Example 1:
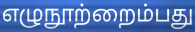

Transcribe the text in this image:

எழுநூற்றைம்பது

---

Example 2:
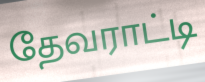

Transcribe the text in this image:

தேவராட்டி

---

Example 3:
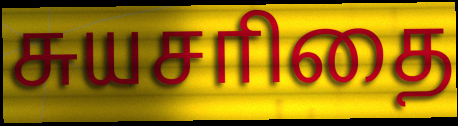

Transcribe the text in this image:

சுயசரிதை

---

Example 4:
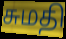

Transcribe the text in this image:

சுமதி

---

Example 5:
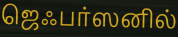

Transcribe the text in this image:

ஜெஃபர்ஸனில்